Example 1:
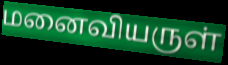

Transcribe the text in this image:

மனைவியருள்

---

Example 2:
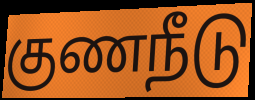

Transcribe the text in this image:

குணநீடு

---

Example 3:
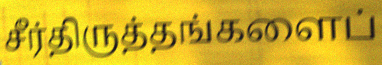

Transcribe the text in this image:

சீர்திருத்தங்களைப்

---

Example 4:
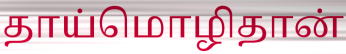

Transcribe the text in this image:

தாய்மொழிதான்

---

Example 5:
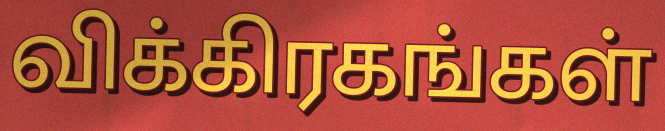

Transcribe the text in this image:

விக்கிரகங்கள்